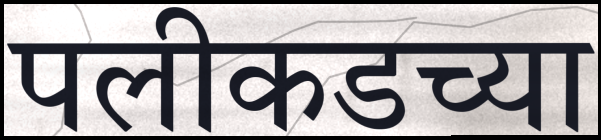
पलीकडच्या